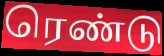
ரெண்டு